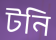
টনি